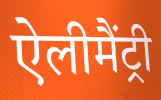
ऐलीमैंट्री